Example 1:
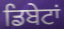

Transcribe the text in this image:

ਡਿਬੇਟਾਂ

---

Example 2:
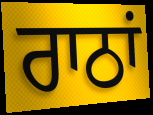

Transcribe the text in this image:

ਰਾਠਾਂ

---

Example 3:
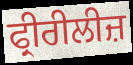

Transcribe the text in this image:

ਫ੍ਰੀਰੀਲੀਜ਼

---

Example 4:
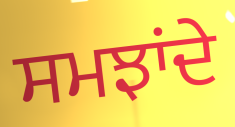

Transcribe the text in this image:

ਸਮਝਾਂਦੇ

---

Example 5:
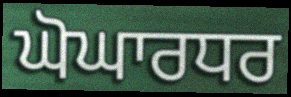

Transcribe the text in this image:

ਘੋਘਾਰਧਰ